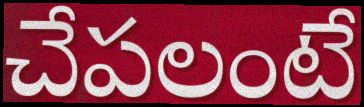
చేపలంటే